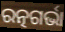
ରତ୍ନଗର୍ଭା